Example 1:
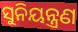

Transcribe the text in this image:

ସୁନିୟନ୍ତ୍ରଣ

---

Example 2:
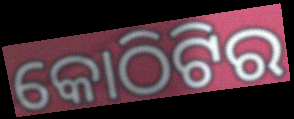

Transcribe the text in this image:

କୋଠିଟିର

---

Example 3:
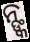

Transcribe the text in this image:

ନ୍ଙ୍କ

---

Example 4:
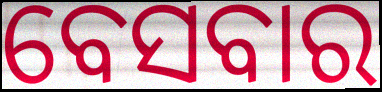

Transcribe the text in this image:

ବେସବାର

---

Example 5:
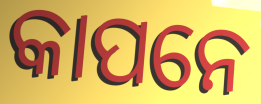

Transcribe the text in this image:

କାପନେ